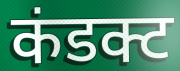
कंडक्ट